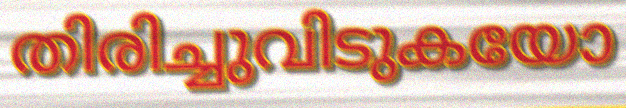
തിരിച്ചുവിടുകയോ